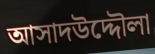
আসাদউদ্দৌলা